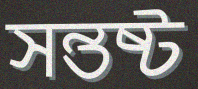
সন্তষ্ট